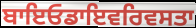
ਬਾਇਓਡਾਇਵਰਿਵਸਤਾ